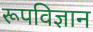
रूपविज्ञान